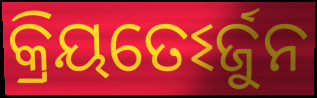
କ୍ରିୟତେଽର୍ଜୁନ